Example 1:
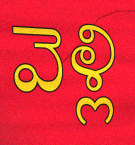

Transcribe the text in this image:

వెళ్లి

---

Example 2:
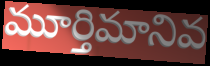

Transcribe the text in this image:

మూర్తిమానివ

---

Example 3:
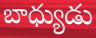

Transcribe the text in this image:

బాధ్యుడు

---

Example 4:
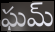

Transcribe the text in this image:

ఘమ్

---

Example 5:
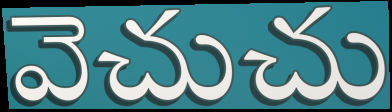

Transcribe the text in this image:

వెచుచు